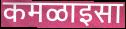
कमळाइसा